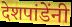
देशपांडेंनी